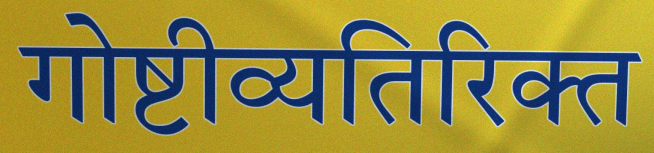
गोष्टीव्यतिरिक्त